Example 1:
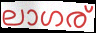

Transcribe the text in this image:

ലാഗര്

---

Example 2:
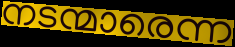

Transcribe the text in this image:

നടന്മാരെന്ന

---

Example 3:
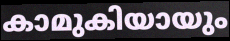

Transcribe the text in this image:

കാമുകിയായും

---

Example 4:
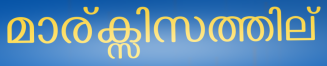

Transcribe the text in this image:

മാര്ക്സിസത്തില്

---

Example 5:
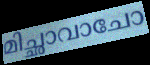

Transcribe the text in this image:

മിച്ഛാവാചോ